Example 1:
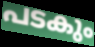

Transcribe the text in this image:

പടകും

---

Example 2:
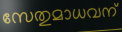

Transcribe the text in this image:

സേതുമാധവന്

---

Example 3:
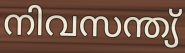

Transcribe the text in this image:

നിവസന്ത്യ്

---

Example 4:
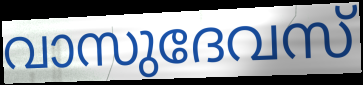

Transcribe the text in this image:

വാസുദേവസ്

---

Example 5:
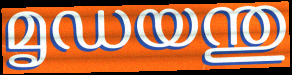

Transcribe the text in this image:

മൃഡയന്തു